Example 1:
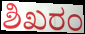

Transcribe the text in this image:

ಶಿಖರಂ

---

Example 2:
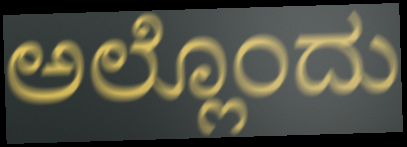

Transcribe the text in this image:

ಅಲ್ಲೊಂದು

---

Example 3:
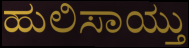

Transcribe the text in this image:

ಹುಲಿಸಾಯ್ತು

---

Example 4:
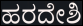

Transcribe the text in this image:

ಹರದೇಶಿ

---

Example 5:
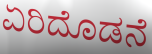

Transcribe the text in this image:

ಏರಿದೊಡನೆ